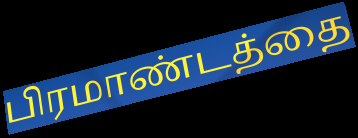
பிரமாண்டத்தை